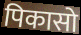
पिकासो